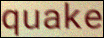
quake